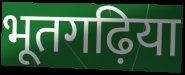
भूतगढ़िया